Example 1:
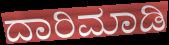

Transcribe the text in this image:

ದಾರಿಮಾಡಿ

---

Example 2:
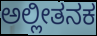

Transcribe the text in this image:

ಅಲ್ಲೀತನಕ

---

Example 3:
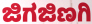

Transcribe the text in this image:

ಜಿಗಜಿಣಗಿ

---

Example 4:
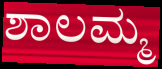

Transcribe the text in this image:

ಶಾಲಮ್ಮ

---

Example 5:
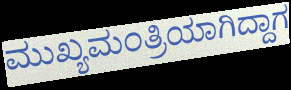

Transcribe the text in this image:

ಮುಖ್ಯಮಂತ್ರಿಯಾಗಿದ್ದಾಗ